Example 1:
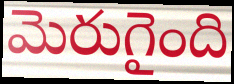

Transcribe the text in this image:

మెరుగైంది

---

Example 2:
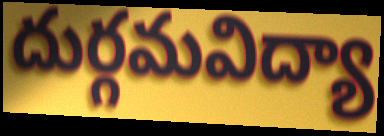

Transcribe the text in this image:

దుర్గమవిద్యా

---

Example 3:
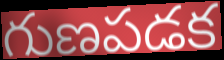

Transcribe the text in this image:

గుణపడక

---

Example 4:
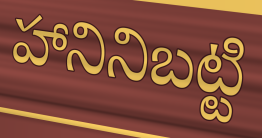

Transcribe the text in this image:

హానినిబట్టి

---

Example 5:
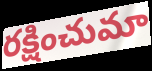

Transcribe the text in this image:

రక్షించుమా